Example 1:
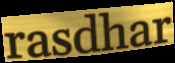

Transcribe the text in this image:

rasdhar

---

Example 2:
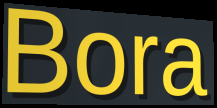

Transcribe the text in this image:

Bora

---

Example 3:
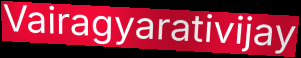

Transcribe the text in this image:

Vairagyarativijay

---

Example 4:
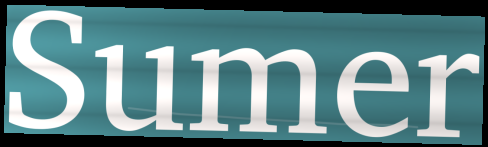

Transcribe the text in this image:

Sumer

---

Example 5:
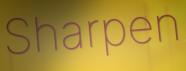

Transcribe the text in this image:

Sharpen